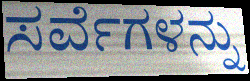
ಸರ್ವೆಗಳನ್ನು